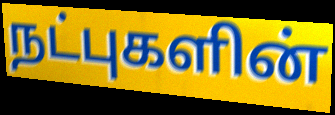
நட்புகளின்